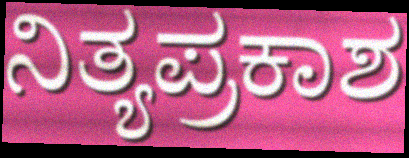
ನಿತ್ಯಪ್ರಕಾಶ